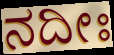
ನದೀಃ